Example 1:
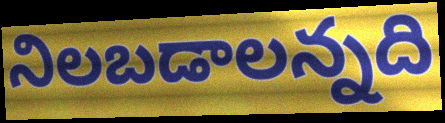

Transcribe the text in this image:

నిలబడాలన్నది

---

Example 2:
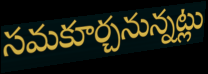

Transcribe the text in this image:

సమకూర్చనున్నట్లు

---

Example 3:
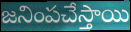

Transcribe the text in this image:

జనింపచేస్తాయి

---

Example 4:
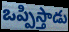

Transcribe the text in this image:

ఒప్పిస్తాడు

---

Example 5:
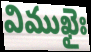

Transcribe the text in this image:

విముఖైః